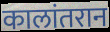
कालांतरान